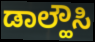
ಡಾಲ್ಹೌಸಿ